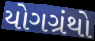
યોગગ્રંથો